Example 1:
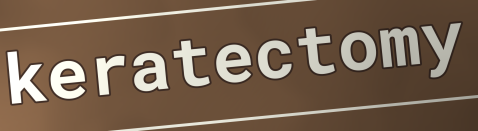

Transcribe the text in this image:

keratectomy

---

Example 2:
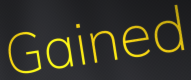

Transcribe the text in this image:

Gained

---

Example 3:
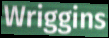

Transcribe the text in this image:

Wriggins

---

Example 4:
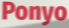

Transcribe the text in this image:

Ponyo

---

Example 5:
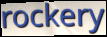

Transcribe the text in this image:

rockery